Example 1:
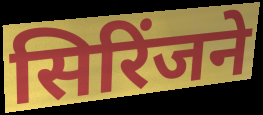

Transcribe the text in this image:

सिरिंजने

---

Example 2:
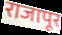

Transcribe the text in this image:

राजापूर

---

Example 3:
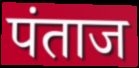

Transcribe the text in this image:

पंताज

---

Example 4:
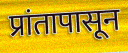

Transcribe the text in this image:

प्रांतापासून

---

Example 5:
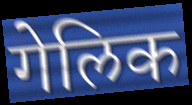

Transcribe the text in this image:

गेलिक